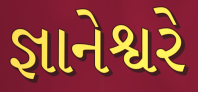
જ્ઞાનેશ્વરે